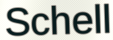
Schell